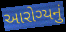
આરોગ્યનું